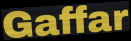
Gaffar